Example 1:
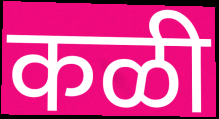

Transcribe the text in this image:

कळी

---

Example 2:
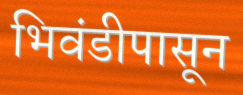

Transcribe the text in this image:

भिवंडीपासून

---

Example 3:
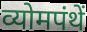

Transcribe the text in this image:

व्योमपंथें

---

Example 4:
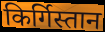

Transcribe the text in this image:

किर्गिस्तान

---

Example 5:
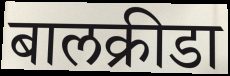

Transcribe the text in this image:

बालक्रीडा